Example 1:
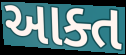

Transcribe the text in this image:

આક્ત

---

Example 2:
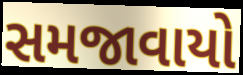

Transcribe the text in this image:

સમજાવાયો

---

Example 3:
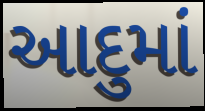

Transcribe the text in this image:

આદુમાં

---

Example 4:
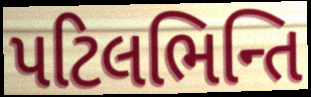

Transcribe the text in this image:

પટિલભિન્તિ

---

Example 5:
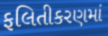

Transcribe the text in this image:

ફલિતીકરણમાં